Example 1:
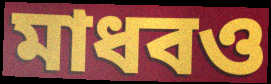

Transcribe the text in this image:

মাধবও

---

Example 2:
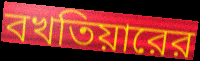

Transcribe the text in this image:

বখতিয়ারের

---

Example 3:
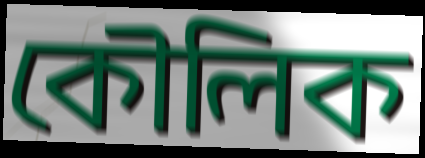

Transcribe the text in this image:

কৌলিক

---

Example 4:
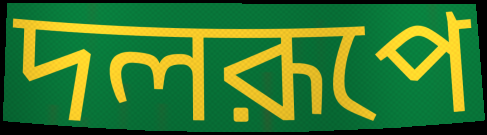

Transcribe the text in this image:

দলরূপে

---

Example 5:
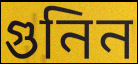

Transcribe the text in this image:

গুনিন